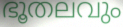
ഭൂതലവും